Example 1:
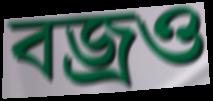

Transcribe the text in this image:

বজ্রও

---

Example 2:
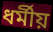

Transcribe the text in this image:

ধর্মীয়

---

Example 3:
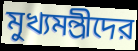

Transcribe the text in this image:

মুখ্যমন্ত্রীদের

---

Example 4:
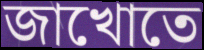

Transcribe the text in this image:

জাখোতে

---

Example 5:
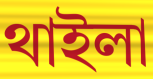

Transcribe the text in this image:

থাইলা